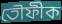
তৌফীক